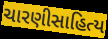
ચારણીસાહિત્ય